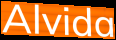
Alvida